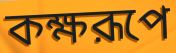
কক্ষরূপে